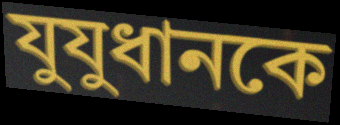
যুযুধানকে